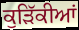
ਕੁੜਿੱਕੀਆਂ